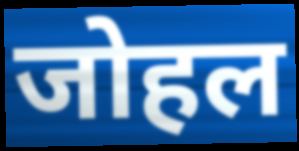
जोहल